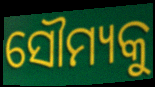
ସୌମ୍ୟକୁ